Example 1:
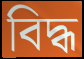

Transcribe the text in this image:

বিদ্ধ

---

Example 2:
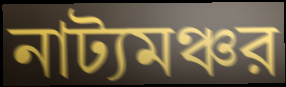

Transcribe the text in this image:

নাট্যমঞ্চর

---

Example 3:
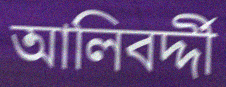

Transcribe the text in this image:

আলিবর্দ্দী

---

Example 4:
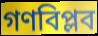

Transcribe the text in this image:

গণবিপ্লব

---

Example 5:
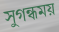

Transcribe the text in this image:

সুগন্ধময়